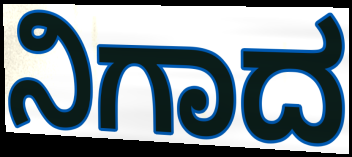
ನಿಗಾದ